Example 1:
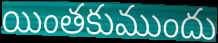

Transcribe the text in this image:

యింతకుముందు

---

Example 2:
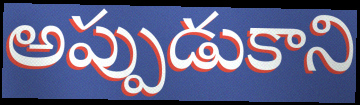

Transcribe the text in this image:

అప్పుడుకాని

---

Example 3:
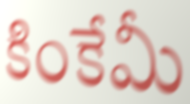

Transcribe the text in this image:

కింకేమీ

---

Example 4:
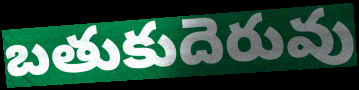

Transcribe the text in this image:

బతుకుదెరువు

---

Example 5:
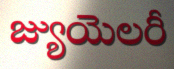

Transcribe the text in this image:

జ్యుయెలరీ